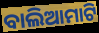
ବାଲିଆମାଟି